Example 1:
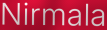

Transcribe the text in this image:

Nirmala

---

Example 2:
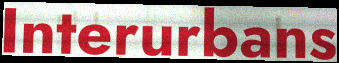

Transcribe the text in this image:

Interurbans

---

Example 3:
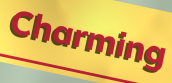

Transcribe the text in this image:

Charming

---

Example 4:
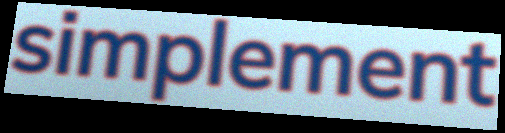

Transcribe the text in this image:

simplement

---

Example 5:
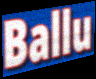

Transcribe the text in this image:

Ballu